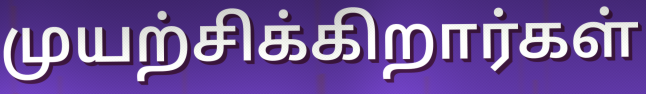
முயற்சிக்கிறார்கள்